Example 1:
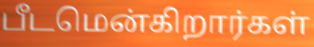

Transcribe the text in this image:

பீடமென்கிறார்கள்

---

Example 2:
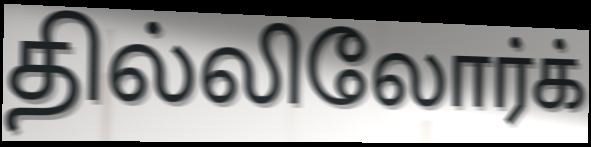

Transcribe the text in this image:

தில்லிலோர்க்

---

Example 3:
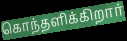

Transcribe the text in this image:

கொந்தளிக்கிறார்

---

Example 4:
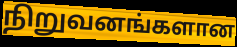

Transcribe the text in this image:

நிறுவனங்களான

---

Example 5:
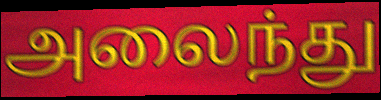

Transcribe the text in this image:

அலைந்து